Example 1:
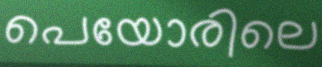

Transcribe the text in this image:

പെയോരിലെ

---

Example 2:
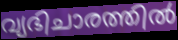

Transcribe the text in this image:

വ്യഭിചാരത്തിൽ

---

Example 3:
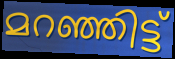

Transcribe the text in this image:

മറഞ്ഞിട്ട്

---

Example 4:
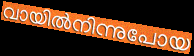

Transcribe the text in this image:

വായിൽനിന്നുപോയ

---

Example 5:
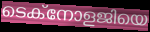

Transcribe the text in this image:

ടെക്‌നോളജിയെ